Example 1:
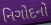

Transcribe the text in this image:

નિગોદનો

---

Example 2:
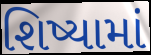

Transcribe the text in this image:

શિષ્યામાં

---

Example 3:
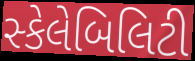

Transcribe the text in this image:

સ્કેલેબિલિટી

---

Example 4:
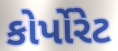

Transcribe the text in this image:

કોર્પોરેટ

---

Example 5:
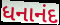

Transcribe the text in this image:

ધનાનંદ